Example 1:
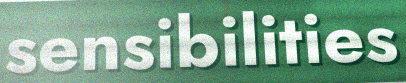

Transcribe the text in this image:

sensibilities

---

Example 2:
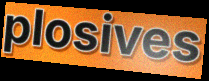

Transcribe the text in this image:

plosives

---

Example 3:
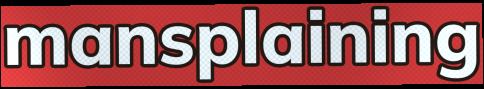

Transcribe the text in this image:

mansplaining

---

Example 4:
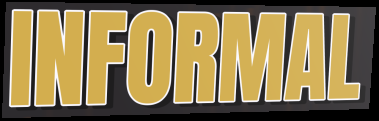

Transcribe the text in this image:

INFORMAL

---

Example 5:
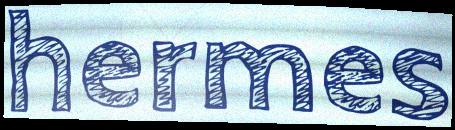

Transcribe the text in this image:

hermes